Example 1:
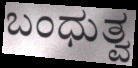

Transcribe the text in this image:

ಬಂಧುತ್ವ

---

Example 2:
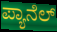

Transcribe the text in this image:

ಪ್ಯಾನೆಲ್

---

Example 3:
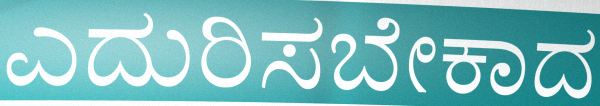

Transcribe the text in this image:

ಎದುರಿಸಬೇಕಾದ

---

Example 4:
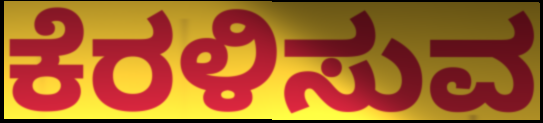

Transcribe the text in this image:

ಕೆರಳಿಸುವ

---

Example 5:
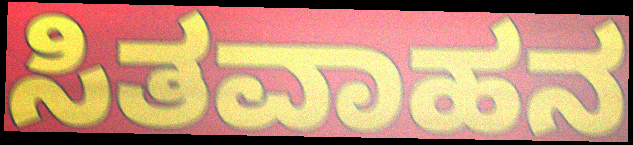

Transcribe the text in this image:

ಸಿತವಾಹನ